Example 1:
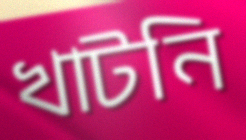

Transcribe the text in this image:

খাটনি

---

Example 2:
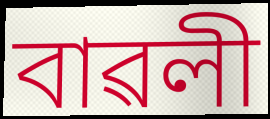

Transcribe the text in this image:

বাৱলী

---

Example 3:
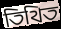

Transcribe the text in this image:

তিথিত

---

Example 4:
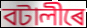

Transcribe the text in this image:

বটালীৰে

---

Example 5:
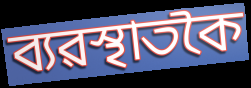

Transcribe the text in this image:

ব্যৱস্থাতকৈ